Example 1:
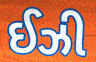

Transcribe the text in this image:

ઈઝી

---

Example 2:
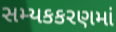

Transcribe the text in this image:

સમ્યકકરણમાં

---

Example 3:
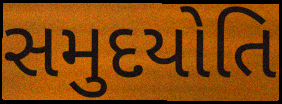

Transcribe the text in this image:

સમુદયોતિ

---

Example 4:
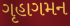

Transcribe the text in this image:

ગૃહાગમન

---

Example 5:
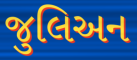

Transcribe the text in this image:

જુલિઅન